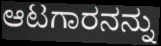
ಆಟಗಾರನನ್ನು